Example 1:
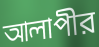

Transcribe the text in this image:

আলাপীর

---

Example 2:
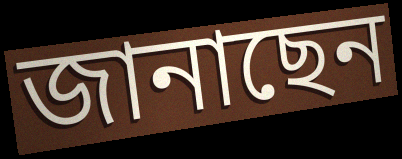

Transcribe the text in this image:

জানাছেন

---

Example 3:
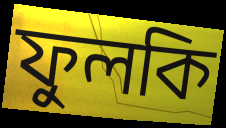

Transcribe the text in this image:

ফুলকি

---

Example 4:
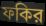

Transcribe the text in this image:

ফকির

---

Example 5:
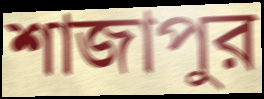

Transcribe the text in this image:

শাজাপুর